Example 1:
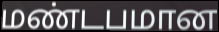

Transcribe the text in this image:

மண்டபமான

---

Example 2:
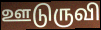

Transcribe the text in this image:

ஊடுருவி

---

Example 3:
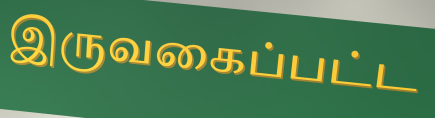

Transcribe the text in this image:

இருவகைப்பட்ட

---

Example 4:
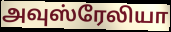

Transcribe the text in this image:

அவுஸ்ரேலியா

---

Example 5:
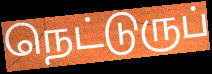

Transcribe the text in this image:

நெட்டுருப்